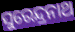
ସୁରେନ୍ଦ୍ରନାଥ